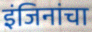
इंजिनांचा